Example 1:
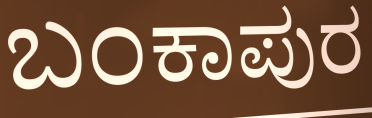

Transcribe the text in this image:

ಬಂಕಾಪುರ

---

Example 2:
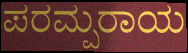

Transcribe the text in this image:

ಪರಮ್ಪರಾಯ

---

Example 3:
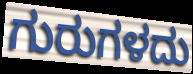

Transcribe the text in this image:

ಗುರುಗಳದು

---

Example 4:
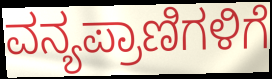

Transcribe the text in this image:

ವನ್ಯಪ್ರಾಣಿಗಳಿಗೆ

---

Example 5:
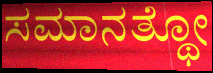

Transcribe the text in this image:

ಸಮಾನತ್ಥೋ